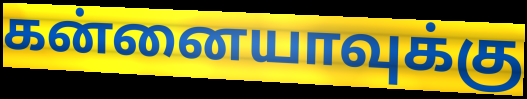
கன்னையாவுக்கு